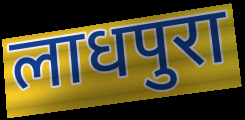
लाधपुरा